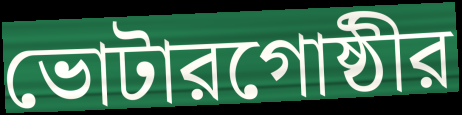
ভোটারগোষ্ঠীর